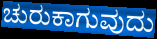
ಚುರುಕಾಗುವುದು